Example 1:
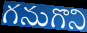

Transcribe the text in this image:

గనుగొని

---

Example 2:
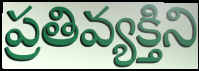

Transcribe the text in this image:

ప్రతివ్యక్తిని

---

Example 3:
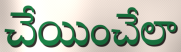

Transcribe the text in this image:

చేయించేలా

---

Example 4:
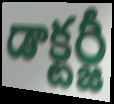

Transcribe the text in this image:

డాక్టర్జీ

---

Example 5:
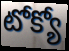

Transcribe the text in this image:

టోక్యో